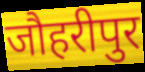
जौहरीपुर